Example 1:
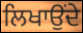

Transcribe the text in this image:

ਲਿਖਾਉਂਦੇ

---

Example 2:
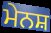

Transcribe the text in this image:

ਮੇਨਸ਼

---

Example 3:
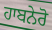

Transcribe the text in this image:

ਹਾਬਨੇਰੋ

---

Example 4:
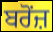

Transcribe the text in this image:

ਬਰੋਂਜ਼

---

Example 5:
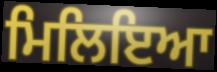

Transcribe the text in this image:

ਮਿਲਿਇਆ